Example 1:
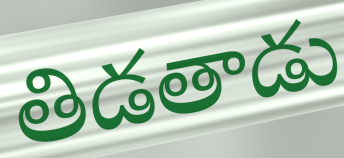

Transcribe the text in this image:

తిడతాడు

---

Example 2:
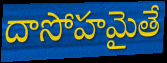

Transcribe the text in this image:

దాసోహమైతే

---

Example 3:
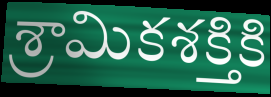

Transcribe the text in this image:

శ్రామికశక్తికి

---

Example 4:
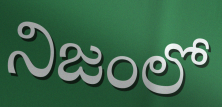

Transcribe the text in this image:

నిజంలో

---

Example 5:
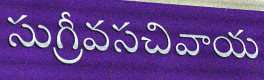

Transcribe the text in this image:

సుగ్రీవసచివాయ